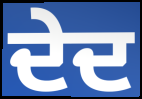
ਦੇਦ